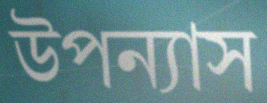
উপন্যাস